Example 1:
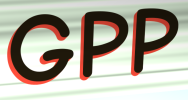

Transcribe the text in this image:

GPP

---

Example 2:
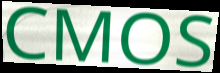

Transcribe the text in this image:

CMOS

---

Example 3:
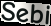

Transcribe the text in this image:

Sebi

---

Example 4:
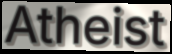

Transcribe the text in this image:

Atheist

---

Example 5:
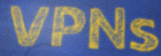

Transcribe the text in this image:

VPNs